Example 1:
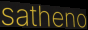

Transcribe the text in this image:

satheno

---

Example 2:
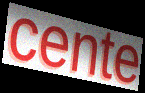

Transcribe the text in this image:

cente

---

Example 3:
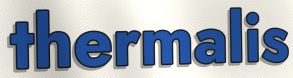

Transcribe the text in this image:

thermalis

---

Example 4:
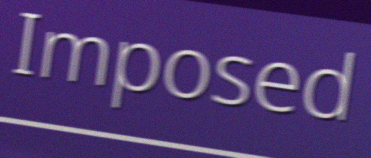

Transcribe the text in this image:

Imposed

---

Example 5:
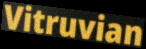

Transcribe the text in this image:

Vitruvian